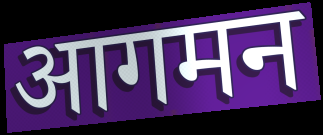
आगमन